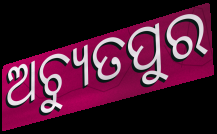
ଅଚ୍ୟୁତପୁର